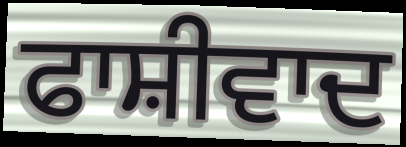
ਫਾਸ਼ੀਵਾਦ